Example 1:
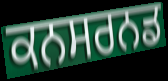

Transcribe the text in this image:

ਕਨਸਰਨਡ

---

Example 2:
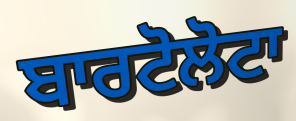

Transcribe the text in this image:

ਬਾਰਟੋਲੋਟਾ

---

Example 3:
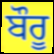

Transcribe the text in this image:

ਬੌਰੂ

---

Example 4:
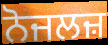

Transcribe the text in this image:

ਨੋਜਲਜ਼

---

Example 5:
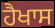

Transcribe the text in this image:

ਹੈਖਾਸ